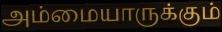
அம்மையாருக்கும்